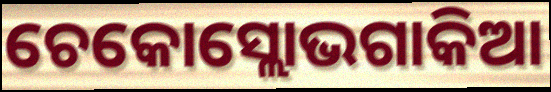
ଚେକୋସ୍ଲୋଭଗାକିଆ